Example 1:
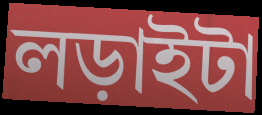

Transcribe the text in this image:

লড়াইটা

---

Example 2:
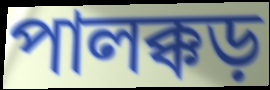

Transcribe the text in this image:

পালক্কড়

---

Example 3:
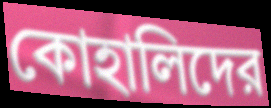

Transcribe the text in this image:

কোহালিদের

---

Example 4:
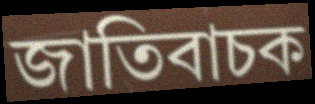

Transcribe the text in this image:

জাতিবাচক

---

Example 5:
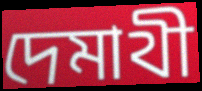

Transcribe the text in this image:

দেমাথী